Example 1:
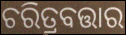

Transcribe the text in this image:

ଚରିତ୍ରବତ୍ତାର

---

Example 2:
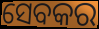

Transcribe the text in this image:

ସେବକର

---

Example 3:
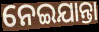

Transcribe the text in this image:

ନେଇଯାନ୍ତା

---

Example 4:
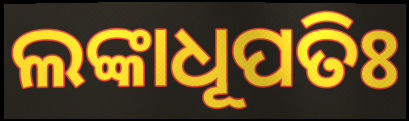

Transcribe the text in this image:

ଲଙ୍କାଧୂପତିଃ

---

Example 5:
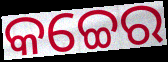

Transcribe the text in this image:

କଚ୍ଚେର